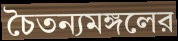
চৈতন্যমঙ্গলের